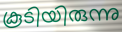
കൂടിയിരുന്നു